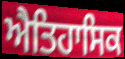
ਐਤਿਹਾਸਿਕ